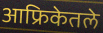
आफ्रिकेतले